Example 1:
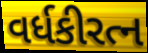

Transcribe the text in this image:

વર્ધકીરત્ન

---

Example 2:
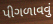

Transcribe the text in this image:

પીગળાવવું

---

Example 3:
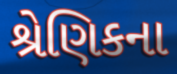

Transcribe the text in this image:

શ્રેણિકના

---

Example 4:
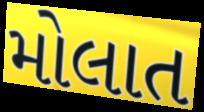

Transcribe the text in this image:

મોલાત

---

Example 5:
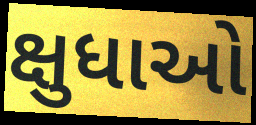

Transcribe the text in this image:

ક્ષુધાઓ